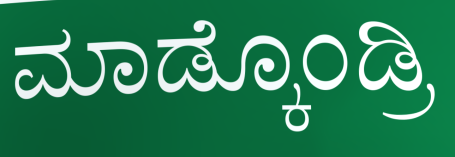
ಮಾಡ್ಕೊಂಡ್ರಿ